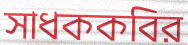
সাধককবির